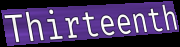
Thirteenth